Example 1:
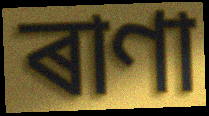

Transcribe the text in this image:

ৰাণা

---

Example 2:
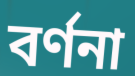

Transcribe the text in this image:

বৰ্ণনা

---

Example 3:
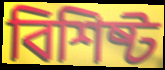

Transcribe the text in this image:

বিশিষ্ট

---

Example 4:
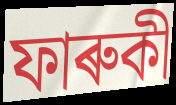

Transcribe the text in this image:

ফাৰুকী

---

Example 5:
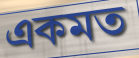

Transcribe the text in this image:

একমত